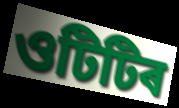
ওটিটিৰ